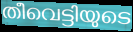
തീവെട്ടിയുടെ